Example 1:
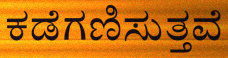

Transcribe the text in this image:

ಕಡೆಗಣಿಸುತ್ತವೆ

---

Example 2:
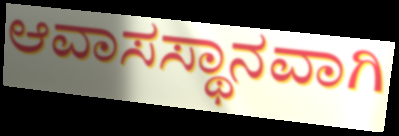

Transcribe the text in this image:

ಆವಾಸಸ್ಥಾನವಾಗಿ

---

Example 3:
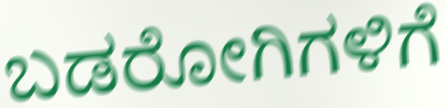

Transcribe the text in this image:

ಬಡರೋಗಿಗಳಿಗೆ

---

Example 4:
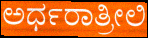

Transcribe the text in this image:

ಅರ್ಧರಾತ್ರೀಲಿ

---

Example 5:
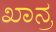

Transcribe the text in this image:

ಖಾನ್ರ